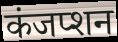
कंजप्शन